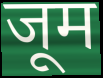
जूम